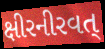
ક્ષીરનીરવત્